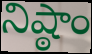
నిష్ఠాం